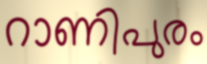
റാണിപുരം